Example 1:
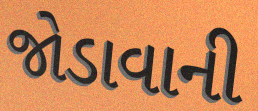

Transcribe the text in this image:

જોડાવાની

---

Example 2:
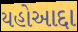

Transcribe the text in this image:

યહોઆદ્દા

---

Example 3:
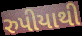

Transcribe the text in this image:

રુપીયાથી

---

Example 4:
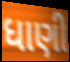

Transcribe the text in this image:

ધાણી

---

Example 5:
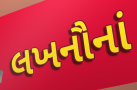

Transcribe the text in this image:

લખનૌનાં